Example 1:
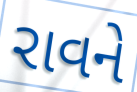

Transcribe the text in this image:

રાવને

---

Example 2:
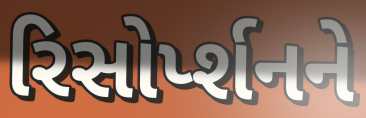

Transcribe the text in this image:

રિસોર્પ્શનને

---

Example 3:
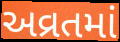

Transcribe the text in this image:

અવ્રતમાં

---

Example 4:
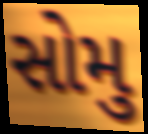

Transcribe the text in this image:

સોમુ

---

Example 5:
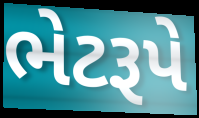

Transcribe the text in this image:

ભેટરૂપે